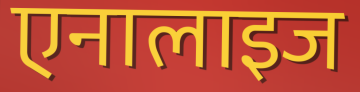
एनालाइज